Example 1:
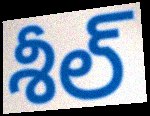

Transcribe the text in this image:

శీల్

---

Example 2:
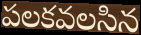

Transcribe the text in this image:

పలకవలసిన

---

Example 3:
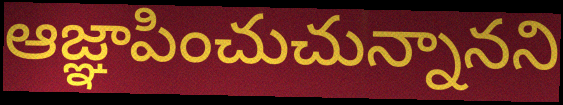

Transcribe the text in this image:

ఆజ్ఞాపించుచున్నానని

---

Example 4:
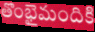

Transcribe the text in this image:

తొంభైమందికి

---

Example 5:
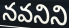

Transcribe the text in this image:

నవనిని